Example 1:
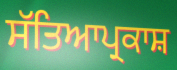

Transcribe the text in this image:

ਸੱਤਿਆਪ੍ਰਕਾਸ਼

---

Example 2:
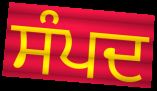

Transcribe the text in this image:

ਸੰਪਦ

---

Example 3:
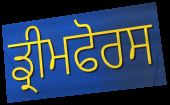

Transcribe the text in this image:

ਡ੍ਰੀਮਫੋਰਸ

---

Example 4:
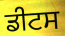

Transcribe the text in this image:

ਡੀਟਸ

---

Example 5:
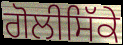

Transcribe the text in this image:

ਗੋਲੀਸਿੱਕੇ